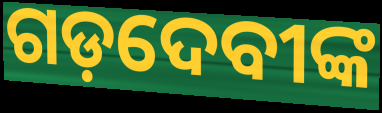
ଗଡ଼ଦେବୀଙ୍କ